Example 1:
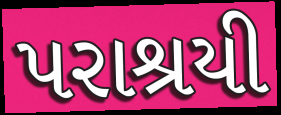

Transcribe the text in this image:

પરાશ્રયી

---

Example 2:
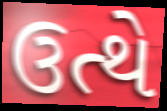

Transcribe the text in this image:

ઉત્થે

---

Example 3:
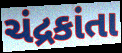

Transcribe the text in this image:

ચંદ્રકાંતા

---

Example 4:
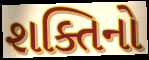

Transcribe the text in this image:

શક્તિનો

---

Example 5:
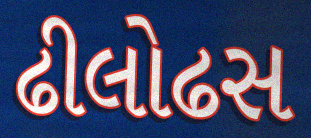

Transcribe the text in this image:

ઢીલોઢસ